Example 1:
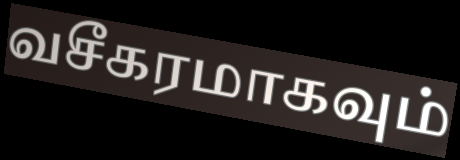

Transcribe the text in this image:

வசீகரமாகவும்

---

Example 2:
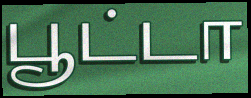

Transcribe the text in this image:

பூட்டா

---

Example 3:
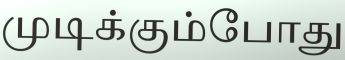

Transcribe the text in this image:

முடிக்கும்போது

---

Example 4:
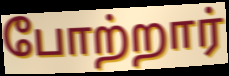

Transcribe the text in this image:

போற்றார்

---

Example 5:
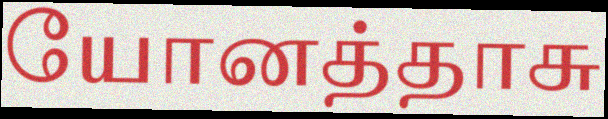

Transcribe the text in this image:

யோனத்தாசு